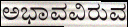
ಅಭಾವವಿರುವ